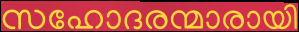
സഹോദരന്മാരായി